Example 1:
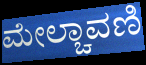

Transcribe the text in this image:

ಮೇಲ್ಚಾವಣಿ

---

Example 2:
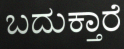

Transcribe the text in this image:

ಬದುಕ್ತಾರೆ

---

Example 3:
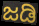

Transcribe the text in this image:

ಜಡಿ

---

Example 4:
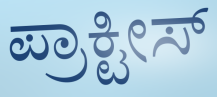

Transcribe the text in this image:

ಪ್ರಾಕ್ಟೀಸ್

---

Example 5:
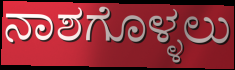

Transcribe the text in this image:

ನಾಶಗೊಳ್ಳಲು